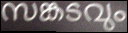
സങ്കടവും